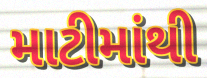
માટીમાંથી